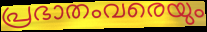
പ്രഭാതംവരെയും